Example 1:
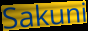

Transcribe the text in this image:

Sakuni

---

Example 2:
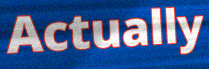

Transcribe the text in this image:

Actually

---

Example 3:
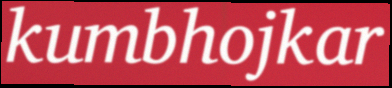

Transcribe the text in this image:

kumbhojkar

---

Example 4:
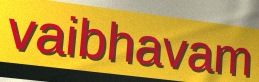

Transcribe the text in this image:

vaibhavam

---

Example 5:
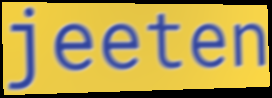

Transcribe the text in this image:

jeeten